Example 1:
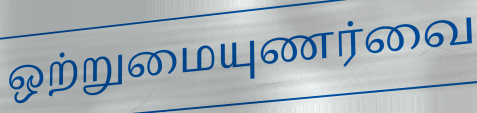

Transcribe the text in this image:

ஒற்றுமையுணர்வை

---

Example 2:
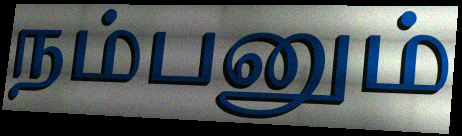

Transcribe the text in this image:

நம்பனும்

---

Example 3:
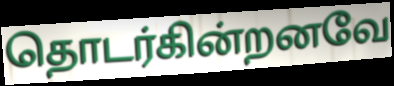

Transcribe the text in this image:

தொடர்கின்றனவே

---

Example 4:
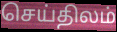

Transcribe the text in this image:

செய்திலம்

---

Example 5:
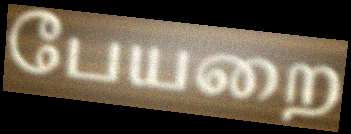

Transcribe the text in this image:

பேயறை